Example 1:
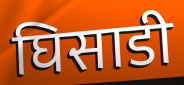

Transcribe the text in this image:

घिसाडी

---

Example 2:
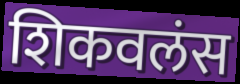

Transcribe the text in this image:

शिकवलंस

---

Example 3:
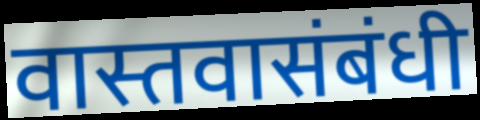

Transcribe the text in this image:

वास्तवासंबंधी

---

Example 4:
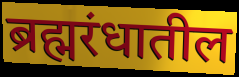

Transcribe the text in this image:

ब्रह्मरंधातील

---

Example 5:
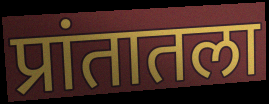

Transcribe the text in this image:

प्रांतातला